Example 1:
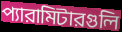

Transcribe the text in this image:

প্যারামিটারগুলি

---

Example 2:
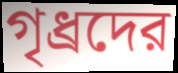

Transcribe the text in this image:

গৃধ্রদের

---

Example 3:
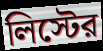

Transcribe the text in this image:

লিস্টের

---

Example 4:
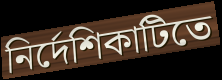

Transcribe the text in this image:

নির্দেশিকাটিতে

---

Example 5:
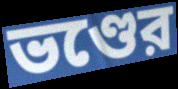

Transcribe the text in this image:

ভণ্ডের